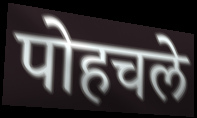
पोहचले